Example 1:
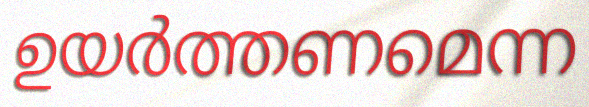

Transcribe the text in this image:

ഉയർത്തണമെന്ന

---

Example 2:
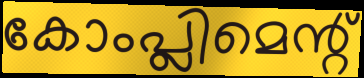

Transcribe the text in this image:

കോംപ്ലിമെന്റ്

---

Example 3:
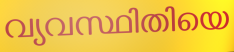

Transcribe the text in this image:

വ്യവസ്ഥിതിയെ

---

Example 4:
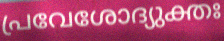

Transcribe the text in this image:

പ്രവേശോദ്യുക്തഃ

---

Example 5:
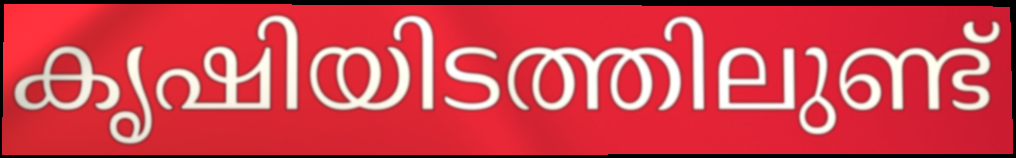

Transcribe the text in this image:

കൃഷിയിടത്തിലുണ്ട്